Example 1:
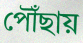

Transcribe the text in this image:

পৌঁছায়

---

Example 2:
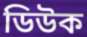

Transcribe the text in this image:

ডিউক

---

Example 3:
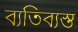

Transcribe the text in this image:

ব্যতিব্যস্ত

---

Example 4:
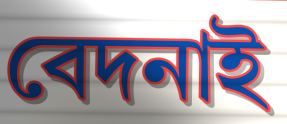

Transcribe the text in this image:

বেদনাই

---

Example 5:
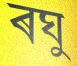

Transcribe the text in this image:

ৰঘু